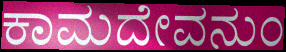
ಕಾಮದೇವನುಂ